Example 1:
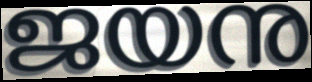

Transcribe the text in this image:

ജയനു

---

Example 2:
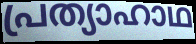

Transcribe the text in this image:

പ്രത്യാഹാഥ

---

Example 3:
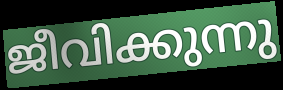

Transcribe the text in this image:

ജീവിക്കുന്നു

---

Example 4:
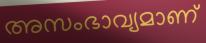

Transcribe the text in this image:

അസംഭാവ്യമാണ്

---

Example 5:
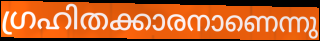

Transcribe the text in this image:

ഗ്രഹിതക്കാരനാണെന്നു